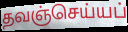
தவஞ்செய்யப்